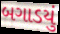
બગાડયું